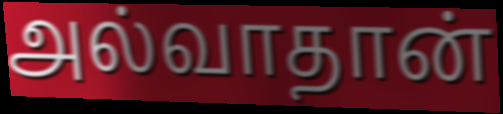
அல்வாதான்